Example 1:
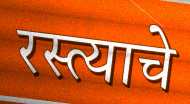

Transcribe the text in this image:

रस्त्याचे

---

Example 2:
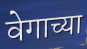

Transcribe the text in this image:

वेगाच्या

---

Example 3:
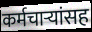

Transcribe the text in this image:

कर्मचाऱ्यांसह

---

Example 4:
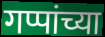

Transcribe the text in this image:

गप्पांच्या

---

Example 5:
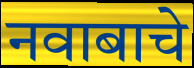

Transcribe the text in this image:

नवाबाचे